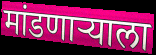
मांडणाऱ्याला